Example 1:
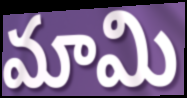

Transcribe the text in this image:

మామి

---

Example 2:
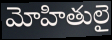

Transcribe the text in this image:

మోహితులై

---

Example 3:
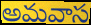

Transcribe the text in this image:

అమవాస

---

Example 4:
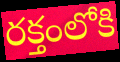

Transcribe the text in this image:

రక్తంలోకి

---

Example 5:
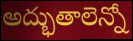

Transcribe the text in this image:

అద్భుతాలెన్నో